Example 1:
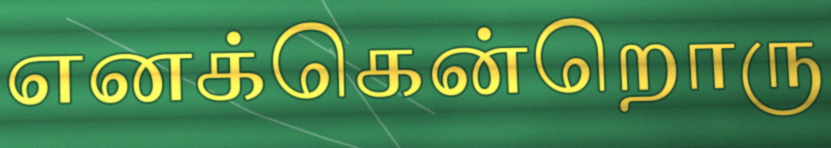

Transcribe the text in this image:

எனக்கென்றொரு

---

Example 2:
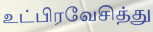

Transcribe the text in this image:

உட்பிரவேசித்து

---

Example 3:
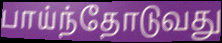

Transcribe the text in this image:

பாய்ந்தோடுவது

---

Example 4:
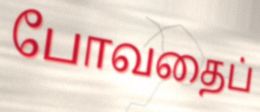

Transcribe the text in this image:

போவதைப்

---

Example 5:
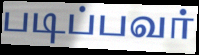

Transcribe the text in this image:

படிப்பவர்